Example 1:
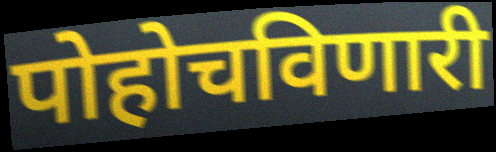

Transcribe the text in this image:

पोहोचविणारी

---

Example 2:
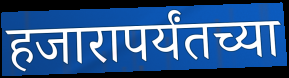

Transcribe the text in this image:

हजारापर्यंतच्या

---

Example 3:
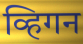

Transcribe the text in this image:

व्हिगन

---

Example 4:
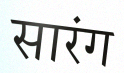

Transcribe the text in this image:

सारंग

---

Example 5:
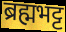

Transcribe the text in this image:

ब्रह्मभट्ट